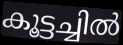
കൂട്ടച്ചിൽ